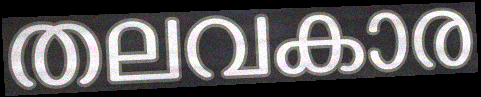
തലവകാര